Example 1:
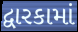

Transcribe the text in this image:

દ્વારકામાં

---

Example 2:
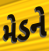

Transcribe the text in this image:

મેડને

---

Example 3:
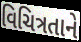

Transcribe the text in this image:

વિચિત્રતાને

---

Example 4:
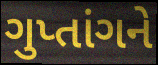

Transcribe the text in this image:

ગુપ્તાંગને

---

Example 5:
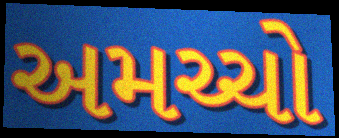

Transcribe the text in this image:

અમચ્ચો